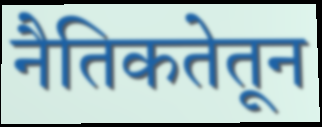
नैतिकतेतून